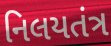
નિલયતંત્ર